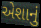
એશાનું